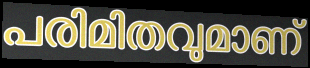
പരിമിതവുമാണ്